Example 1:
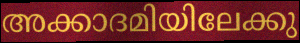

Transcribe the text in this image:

അക്കാദമിയിലേക്കു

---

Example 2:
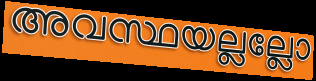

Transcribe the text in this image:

അവസ്ഥയല്ലല്ലോ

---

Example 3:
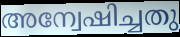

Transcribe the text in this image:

അന്വേഷിച്ചതു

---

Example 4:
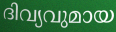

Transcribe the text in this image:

ദിവ്യവുമായ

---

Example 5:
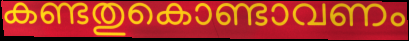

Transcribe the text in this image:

കണ്ടതുകൊണ്ടാവണം